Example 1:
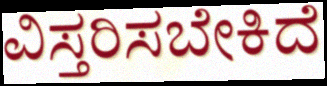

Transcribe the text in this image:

ವಿಸ್ತರಿಸಬೇಕಿದೆ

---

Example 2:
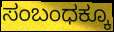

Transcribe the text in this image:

ಸಂಬಂಧಕ್ಕೂ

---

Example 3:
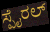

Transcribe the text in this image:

ಸ್ಪೈರಲ್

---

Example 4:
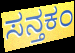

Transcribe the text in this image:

ಸನ್ತಕಂ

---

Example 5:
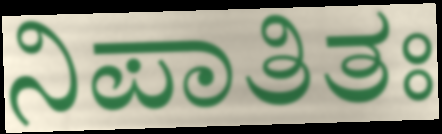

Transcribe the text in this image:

ನಿಪಾತಿತಃ